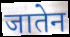
जातेन